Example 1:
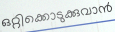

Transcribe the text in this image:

ഒറ്റിക്കൊടുക്കുവാൻ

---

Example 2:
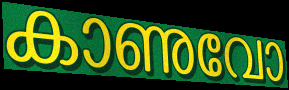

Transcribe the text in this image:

കാണുവോ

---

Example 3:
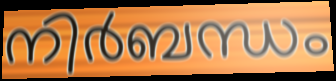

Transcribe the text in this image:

നിർബന്ധം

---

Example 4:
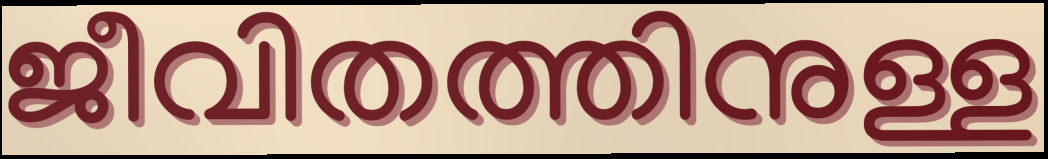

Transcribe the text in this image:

ജീവിതത്തിനുള്ള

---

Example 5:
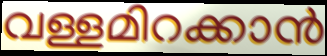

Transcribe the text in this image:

വള്ളമിറക്കാൻ